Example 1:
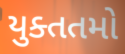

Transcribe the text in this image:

યુક્તતમો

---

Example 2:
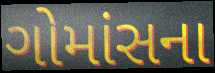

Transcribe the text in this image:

ગોમાંસના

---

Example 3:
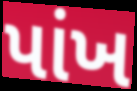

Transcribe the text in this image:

પાંખ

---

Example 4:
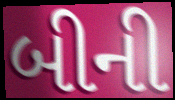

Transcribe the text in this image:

બીની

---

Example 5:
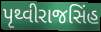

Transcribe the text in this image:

પૃથ્વીરાજસિંહ